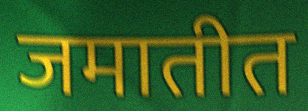
जमातीत